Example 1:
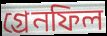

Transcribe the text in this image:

গ্রেনফিল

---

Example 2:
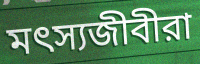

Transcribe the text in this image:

মৎস্যজীবীরা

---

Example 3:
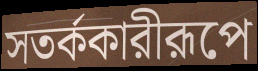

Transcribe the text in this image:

সতর্ককারীরূপে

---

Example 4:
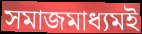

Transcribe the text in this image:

সমাজমাধ্যমই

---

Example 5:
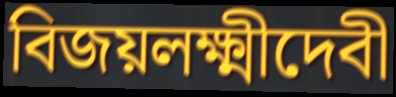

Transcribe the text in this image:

বিজয়লক্ষ্মীদেবী